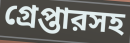
গ্রেপ্তারসহ